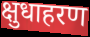
क्षुधाहरण